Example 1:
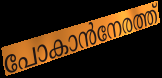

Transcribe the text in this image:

പോകാൻനേരത്ത്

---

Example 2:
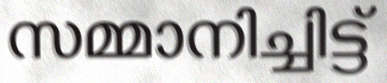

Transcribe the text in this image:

സമ്മാനിച്ചിട്ട്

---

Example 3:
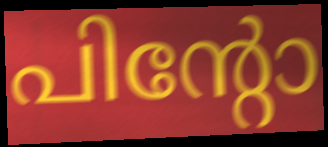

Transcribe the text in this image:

പിന്റോ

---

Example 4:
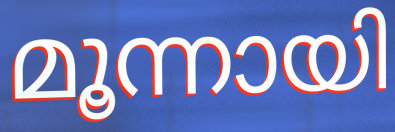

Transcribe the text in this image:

മൂന്നായി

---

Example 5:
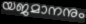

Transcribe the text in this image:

യജമാനനും